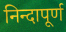
निन्दापूर्ण